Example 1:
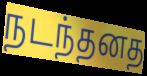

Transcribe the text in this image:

நடந்தனத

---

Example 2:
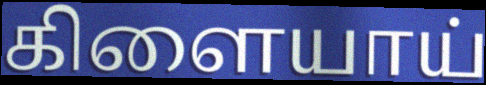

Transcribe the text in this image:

கிளையாய்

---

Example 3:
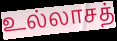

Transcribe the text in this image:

உல்லாசத்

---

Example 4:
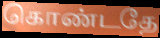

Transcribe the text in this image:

கொண்டதே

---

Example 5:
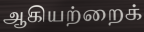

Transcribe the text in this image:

ஆகியற்றைக்